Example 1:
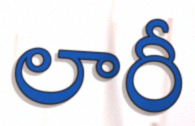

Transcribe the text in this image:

లారీ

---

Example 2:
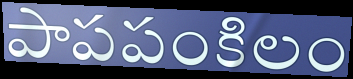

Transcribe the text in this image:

పాపపంకిలం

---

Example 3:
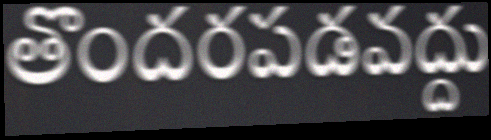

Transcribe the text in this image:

తొందరపడవద్దు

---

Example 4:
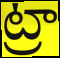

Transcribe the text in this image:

ట్రా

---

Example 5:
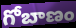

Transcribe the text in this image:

గోబాణం